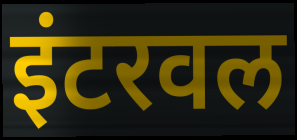
इंटरवल